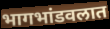
भागभांडवलात